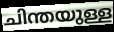
ചിന്തയുള്ള